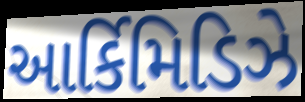
આર્કિમિડિઝે